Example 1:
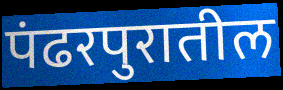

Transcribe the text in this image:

पंढरपुरातील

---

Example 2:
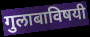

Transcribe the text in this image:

गुलाबाविषयी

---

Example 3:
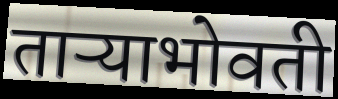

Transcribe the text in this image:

ताऱ्याभोवती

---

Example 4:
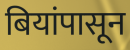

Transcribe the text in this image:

बियांपासून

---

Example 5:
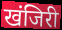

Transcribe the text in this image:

खंजिरी